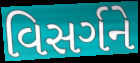
વિસર્ગને